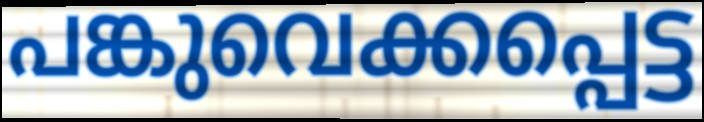
പങ്കുവെക്കപ്പെട്ട